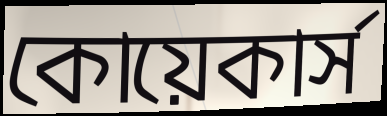
কোয়েকার্স